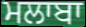
ਮਲਾਬਾ